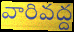
వారివద్ద